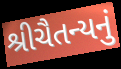
શ્રીચૈતન્યનું